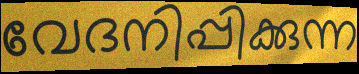
വേദനിപ്പിക്കുന്ന